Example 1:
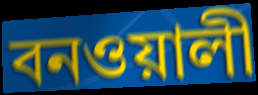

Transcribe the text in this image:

বনওয়ালী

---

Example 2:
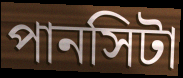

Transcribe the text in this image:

পানসিটা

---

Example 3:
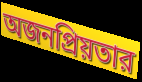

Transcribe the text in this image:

অজনপ্রিয়তার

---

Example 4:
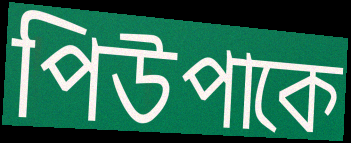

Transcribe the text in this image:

পিউপাকে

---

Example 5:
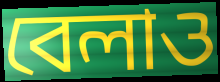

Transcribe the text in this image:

বেলাও